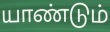
யாண்டும்